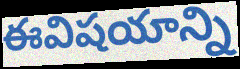
ఈవిషయాన్ని